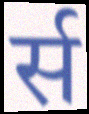
र्स